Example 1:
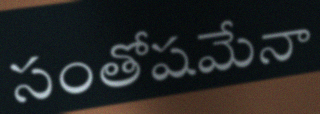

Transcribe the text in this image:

సంతోషమేనా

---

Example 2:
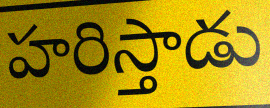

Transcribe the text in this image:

హరిస్తాడు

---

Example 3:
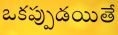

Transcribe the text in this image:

ఒకప్పుడయితే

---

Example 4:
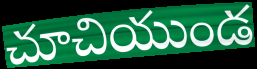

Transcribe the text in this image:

చూచియుండ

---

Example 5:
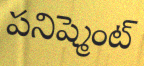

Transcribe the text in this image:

పనిష్మెంట్